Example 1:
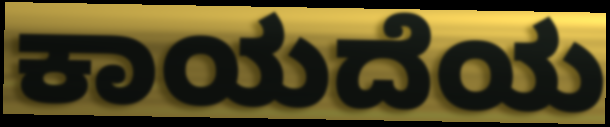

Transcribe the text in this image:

ಕಾಯದೆಯ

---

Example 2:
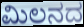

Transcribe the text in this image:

ಮಿಲನದ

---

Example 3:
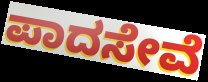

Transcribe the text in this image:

ಪಾದಸೇವೆ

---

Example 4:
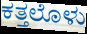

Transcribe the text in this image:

ಕತ್ತಲೊಳು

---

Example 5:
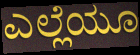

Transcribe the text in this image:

ಎಲ್ಲೆಯೂ